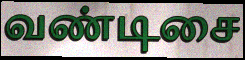
வண்டிசை